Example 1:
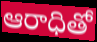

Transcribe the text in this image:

ఆరాధితో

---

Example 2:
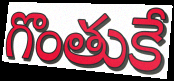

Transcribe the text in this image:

గొంతుకే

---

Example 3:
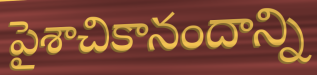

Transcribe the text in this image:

పైశాచికానందాన్ని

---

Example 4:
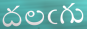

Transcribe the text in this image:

దలఁగు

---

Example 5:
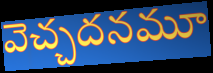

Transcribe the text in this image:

వెచ్చదనమూ